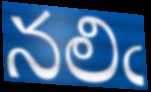
నలిఁ